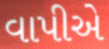
વાપીએ